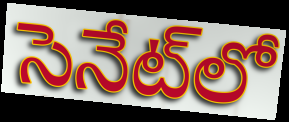
సెనేట్‌లో